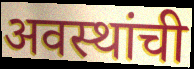
अवस्थांची